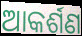
ଆକର୍ଶଣ